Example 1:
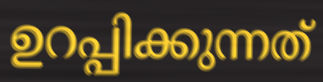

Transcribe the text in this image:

ഉറപ്പിക്കുന്നത്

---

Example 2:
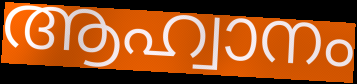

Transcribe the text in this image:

ആഹ്വാനം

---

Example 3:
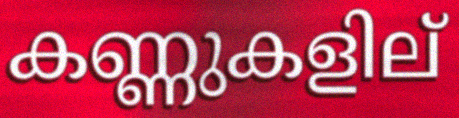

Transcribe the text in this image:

കണ്ണുകളില്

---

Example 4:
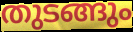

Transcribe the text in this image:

തുടങ്ങും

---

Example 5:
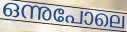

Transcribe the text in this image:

ഒന്നുപോലെ